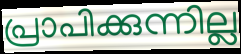
പ്രാപിക്കുന്നില്ല